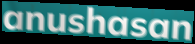
anushasan